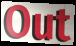
Out